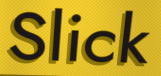
Slick